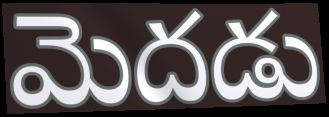
మెదడు